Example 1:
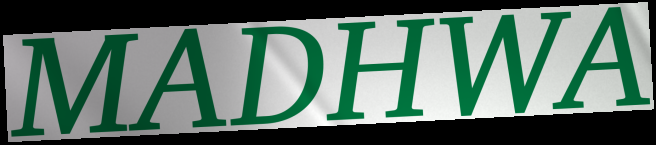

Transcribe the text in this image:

MADHWA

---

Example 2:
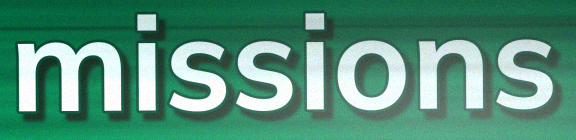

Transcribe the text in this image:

missions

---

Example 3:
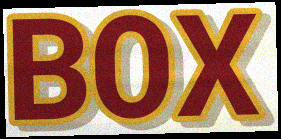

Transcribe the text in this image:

BOX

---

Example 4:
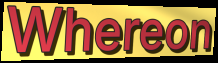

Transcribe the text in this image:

Whereon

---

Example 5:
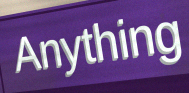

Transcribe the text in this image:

Anything